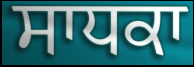
ਸਾਧਕਾ